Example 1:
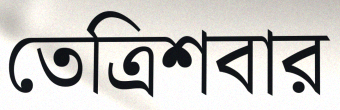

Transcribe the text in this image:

তেত্রিশবার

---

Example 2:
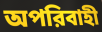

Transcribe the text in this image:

অপরিবাহী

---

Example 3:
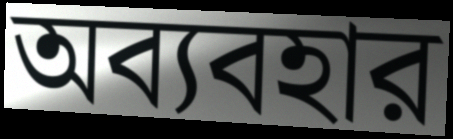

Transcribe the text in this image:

অব্যবহার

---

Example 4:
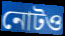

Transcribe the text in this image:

নোটও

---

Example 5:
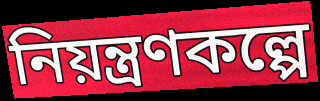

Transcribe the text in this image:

নিয়ন্ত্রণকল্পে